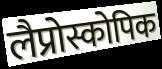
लैप्रोस्कोपिक